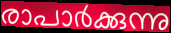
രാപാർക്കുന്നു